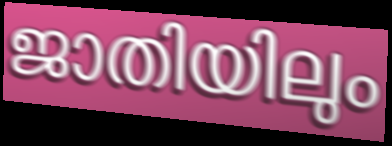
ജാതിയിലും